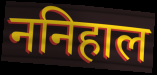
ननिहाल